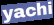
yachi